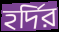
হর্দির